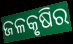
ଜଳକୃଷିର